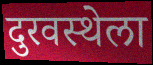
दुरवस्थेला